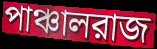
পাঞ্চালরাজ